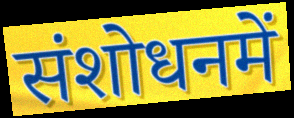
संशोधनमें